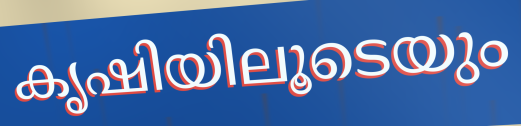
കൃഷിയിലൂടെയും